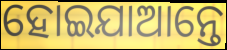
ହୋଇଯାଆନ୍ତେ